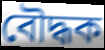
বৌদ্ধক